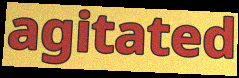
agitated